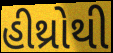
હીથ્રોથી